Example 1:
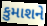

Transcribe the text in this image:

કુમાશને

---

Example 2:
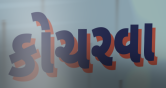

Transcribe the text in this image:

કોચરવા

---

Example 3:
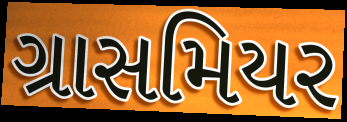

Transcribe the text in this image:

ગ્રાસમિયર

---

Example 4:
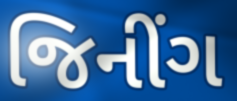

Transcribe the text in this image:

જિનીંગ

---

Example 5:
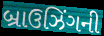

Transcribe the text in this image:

બ્રાઉઝિંગની